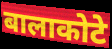
बालाकोटे